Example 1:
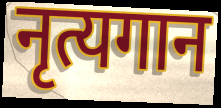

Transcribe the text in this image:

नृत्यगान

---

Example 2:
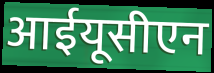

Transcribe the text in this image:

आईयूसीएन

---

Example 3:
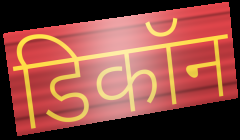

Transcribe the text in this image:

डिकॉन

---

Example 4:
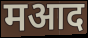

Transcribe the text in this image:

मआद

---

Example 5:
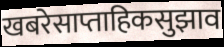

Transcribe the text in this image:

खबरेसाप्ताहिकसुझाव